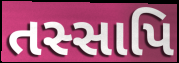
તસ્સાપિ